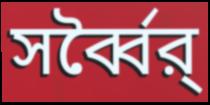
সর্ব্বৈর্